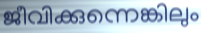
ജീവിക്കുന്നെങ്കിലും